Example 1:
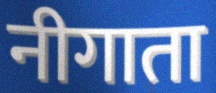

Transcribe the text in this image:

नीगाता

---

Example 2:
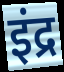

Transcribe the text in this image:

इंद्र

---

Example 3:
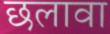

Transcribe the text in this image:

छलावा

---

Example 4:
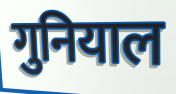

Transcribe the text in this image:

गुनियाल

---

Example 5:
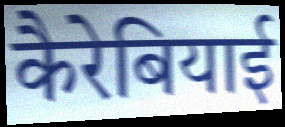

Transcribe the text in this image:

कैरेबियाई